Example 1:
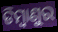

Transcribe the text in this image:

ଡିମ୍ବାଣୁର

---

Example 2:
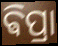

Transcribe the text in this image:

ଵିପ୍ରା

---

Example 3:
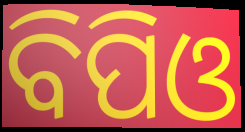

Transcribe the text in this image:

ବିପିଓ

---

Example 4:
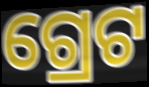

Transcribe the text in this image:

ଗ୍ରେଟ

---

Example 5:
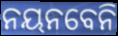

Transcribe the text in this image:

ନୟନବେନି